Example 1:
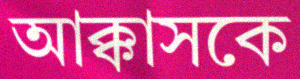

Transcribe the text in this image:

আক্কাসকে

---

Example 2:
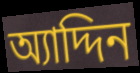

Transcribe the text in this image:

অ্যাদ্দিন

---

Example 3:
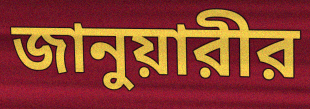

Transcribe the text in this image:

জানুয়ারীর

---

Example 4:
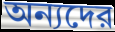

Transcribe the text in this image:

অন্যদের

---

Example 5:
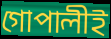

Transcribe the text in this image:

গোপালীই